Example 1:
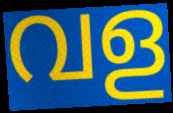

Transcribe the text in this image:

വള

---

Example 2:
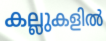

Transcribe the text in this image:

കല്ലുകളിൽ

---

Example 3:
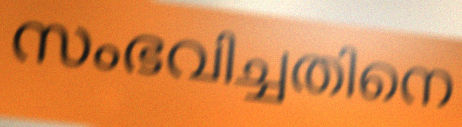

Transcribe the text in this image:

സംഭവിച്ചതിനെ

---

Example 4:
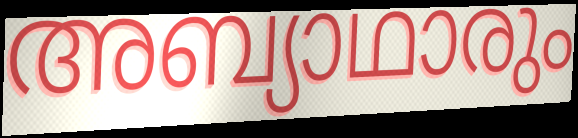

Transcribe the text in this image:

അബ്യാഥാരും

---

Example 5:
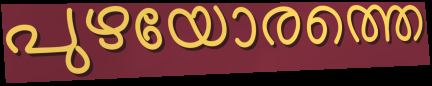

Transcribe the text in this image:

പുഴയോരത്തെ